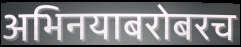
अभिनयाबरोबरच